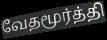
வேதமூர்த்தி